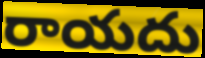
రాయదు